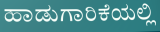
ಹಾಡುಗಾರಿಕೆಯಲ್ಲಿ